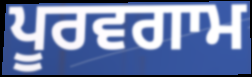
ਪੂਰਵਗਾਮ